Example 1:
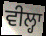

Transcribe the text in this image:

ਵੀਲ੍ਹਾ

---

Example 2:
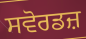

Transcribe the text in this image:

ਸਵੋਰਡਜ਼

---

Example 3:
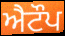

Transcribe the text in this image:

ਐਟੌਪ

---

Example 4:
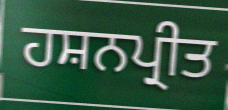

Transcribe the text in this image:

ਹਸ਼ਨਪ੍ਰੀਤ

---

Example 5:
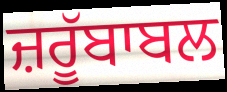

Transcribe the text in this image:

ਜ਼ਰੂੱਬਾਬਲ